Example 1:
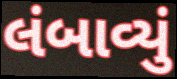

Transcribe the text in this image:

લંબાવ્યું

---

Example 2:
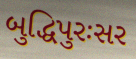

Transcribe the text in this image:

બુદ્ધિપુરઃસર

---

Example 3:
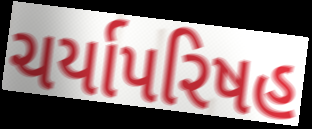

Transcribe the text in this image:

ચર્યાપરિષહ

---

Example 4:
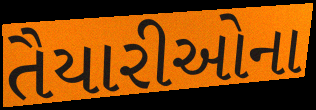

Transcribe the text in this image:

તૈયારીઓના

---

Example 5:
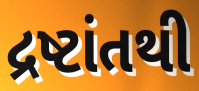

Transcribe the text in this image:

દ્રષ્ટાંતથી